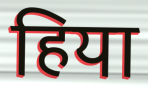
हिया